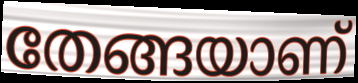
തേങ്ങയാണ്